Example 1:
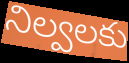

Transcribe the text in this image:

నిల్వలకు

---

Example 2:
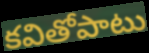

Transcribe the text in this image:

కవితోపాటు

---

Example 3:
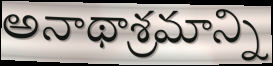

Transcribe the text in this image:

అనాథాశ్రమాన్ని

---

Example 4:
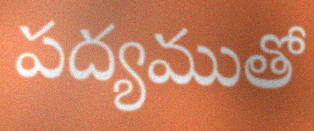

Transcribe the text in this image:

పద్యముతో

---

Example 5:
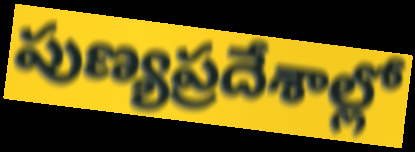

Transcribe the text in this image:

పుణ్యప్రదేశాల్లో